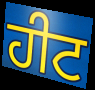
ਹੀਟ